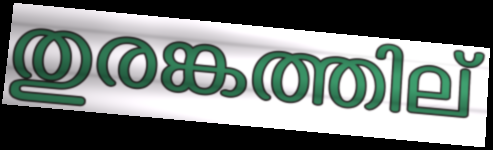
തുരങ്കത്തില്